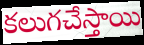
కలుగచేస్తాయి